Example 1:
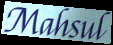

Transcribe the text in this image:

Mahsul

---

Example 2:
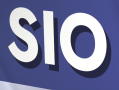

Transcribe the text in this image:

SIO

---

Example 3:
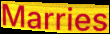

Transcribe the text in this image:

Marries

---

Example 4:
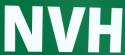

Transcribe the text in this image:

NVH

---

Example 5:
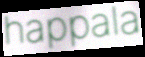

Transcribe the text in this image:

happala